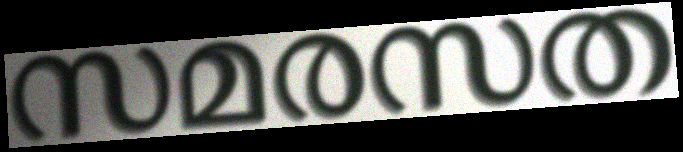
സമരസത